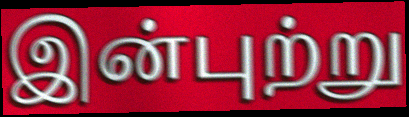
இன்புற்று